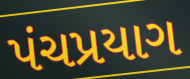
પંચપ્રયાગ